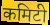
कमिटी